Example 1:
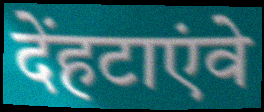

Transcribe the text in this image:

देंहटाएंवे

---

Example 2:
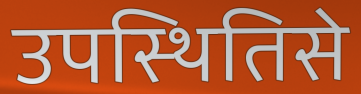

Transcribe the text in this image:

उपस्थितिसे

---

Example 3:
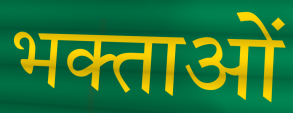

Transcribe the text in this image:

भक्ताओं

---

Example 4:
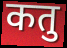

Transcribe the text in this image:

कतु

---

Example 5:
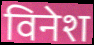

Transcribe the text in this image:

विनेश